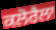
ਕਲੋਰੈਲਾ